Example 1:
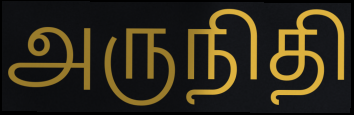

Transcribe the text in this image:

அருநிதி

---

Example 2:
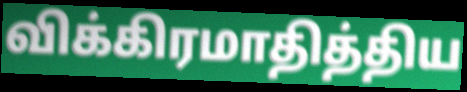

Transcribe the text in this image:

விக்கிரமாதித்திய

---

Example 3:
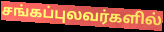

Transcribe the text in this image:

சங்கப்புலவர்களில்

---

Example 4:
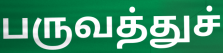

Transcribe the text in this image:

பருவத்துச்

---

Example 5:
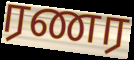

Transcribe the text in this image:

ரணர